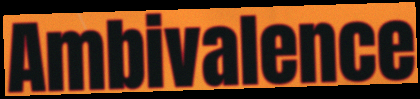
Ambivalence